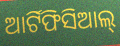
ଆର୍ଟିଫିସିଆଲ୍